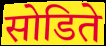
सोडिते